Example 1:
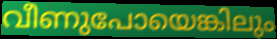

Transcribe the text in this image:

വീണുപോയെങ്കിലും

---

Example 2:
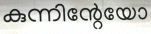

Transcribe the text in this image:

കുന്നിന്റേയോ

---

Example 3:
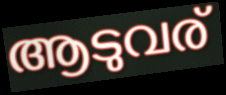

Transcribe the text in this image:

ആടുവര്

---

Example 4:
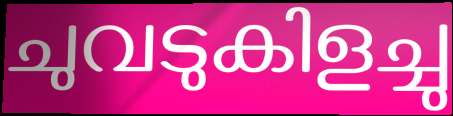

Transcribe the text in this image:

ചുവടുകിളച്ചു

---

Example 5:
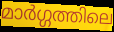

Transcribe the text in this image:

മാർഗ്ഗത്തിലെ